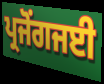
ਪ੍ਰਜੋਂਗਜਈ